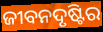
ଜୀବନଦୃଷ୍ଟିର